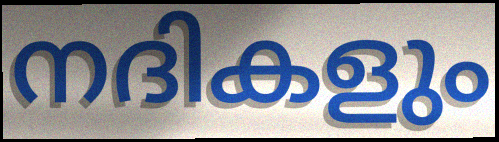
നദികളും